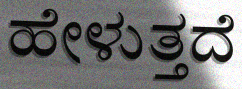
ಹೇಳುತ್ತದೆ